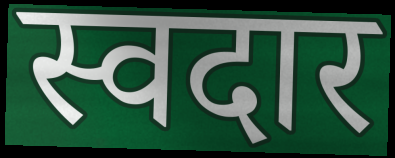
स्वदार